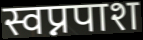
स्वप्नपाश